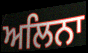
ਅਲਿਨਾ